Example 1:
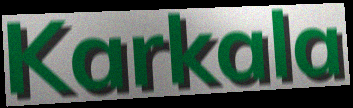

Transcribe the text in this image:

Karkala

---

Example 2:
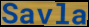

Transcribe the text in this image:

Savla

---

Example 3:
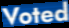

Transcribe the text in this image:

Voted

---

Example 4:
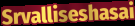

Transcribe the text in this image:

Srvalliseshasai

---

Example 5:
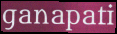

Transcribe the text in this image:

ganapati